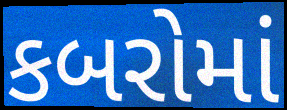
કબરોમાં